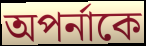
অপর্নাকে